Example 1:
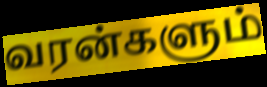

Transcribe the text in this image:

வரன்களும்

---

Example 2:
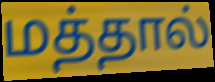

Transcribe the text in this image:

மத்தால்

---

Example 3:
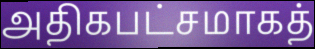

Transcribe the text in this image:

அதிகபட்சமாகத்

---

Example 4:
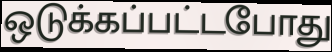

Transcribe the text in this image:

ஒடுக்கப்பட்டபோது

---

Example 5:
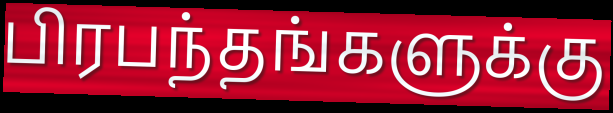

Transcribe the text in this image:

பிரபந்தங்களுக்கு